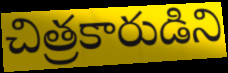
చిత్రకారుడిని